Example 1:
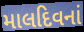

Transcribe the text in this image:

માલદિવનાં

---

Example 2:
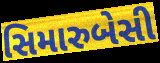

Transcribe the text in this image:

સિમારુબેસી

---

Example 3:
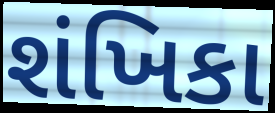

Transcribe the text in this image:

શંખિકા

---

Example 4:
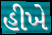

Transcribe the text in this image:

હીખે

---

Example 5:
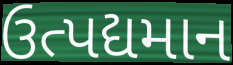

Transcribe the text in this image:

ઉત્પદ્યમાન